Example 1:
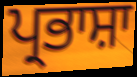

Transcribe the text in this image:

ਪ੍ਰਭਾਸ਼ਾ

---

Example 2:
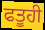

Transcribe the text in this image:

ਫਤੂਹੀ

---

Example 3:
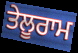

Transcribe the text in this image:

ਤੇਲੂਰਾਮ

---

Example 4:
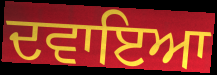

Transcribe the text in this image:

ਦਵਾਇਆ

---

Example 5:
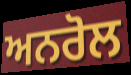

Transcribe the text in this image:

ਅਨਰੋਲ